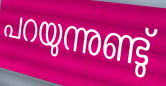
പറയുന്നുണ്ടു്